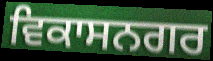
ਵਿਕਾਸਨਗਰ